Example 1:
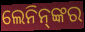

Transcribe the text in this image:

ଲେନିନ୍‌ଙ୍କର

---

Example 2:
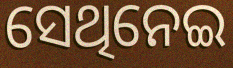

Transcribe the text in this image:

ସେଥିନେଇ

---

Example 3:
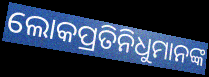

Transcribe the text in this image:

ଲୋକପ୍ରତିନିଧୁମାନଙ୍କ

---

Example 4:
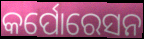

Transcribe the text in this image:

କର୍ପୋରେସନ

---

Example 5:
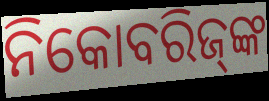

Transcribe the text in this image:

ନିକୋବରିଜ୍‍ଙ୍କ